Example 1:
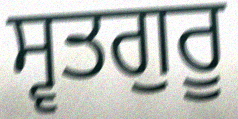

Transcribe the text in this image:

ਸ੍ਵਤਗੁਰੂ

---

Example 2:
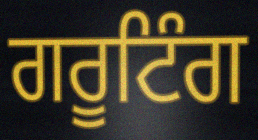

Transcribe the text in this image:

ਗਰੂਟਿੰਗ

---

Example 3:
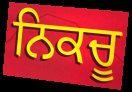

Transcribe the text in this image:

ਨਿਕਚੂ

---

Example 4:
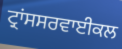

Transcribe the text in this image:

ਟ੍ਰਾਂਸਸਰਵਾਈਕਲ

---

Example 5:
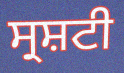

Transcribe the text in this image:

ਸ੍ਰਸ਼ਟੀ